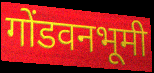
गोंडवनभूमी